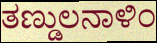
ತಣ್ಡುಲನಾಳಿಂ